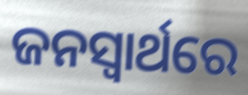
ଜନସ୍ୱାର୍ଥରେ